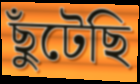
ছুঁটেছি